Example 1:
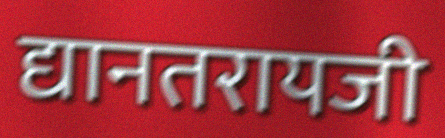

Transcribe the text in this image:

द्यानतरायजी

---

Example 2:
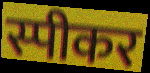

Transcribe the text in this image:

स्‍पीकर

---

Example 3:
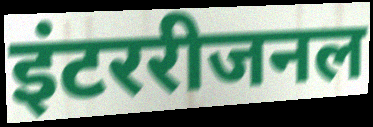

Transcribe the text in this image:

इंटररीजनल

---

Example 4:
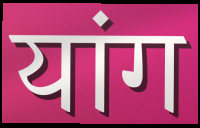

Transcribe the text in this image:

यांग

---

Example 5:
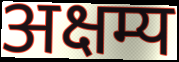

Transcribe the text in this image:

अक्षम्‍य